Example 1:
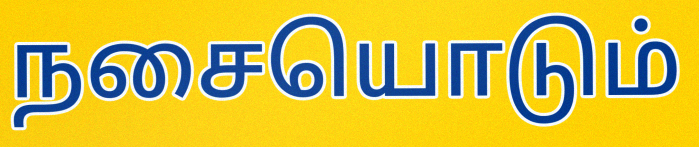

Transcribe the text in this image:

நசையொடும்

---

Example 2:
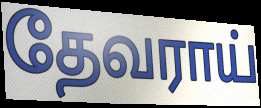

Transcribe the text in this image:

தேவராய்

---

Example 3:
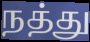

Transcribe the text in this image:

நத்து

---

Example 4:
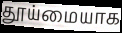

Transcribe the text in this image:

தூய்மையாக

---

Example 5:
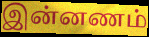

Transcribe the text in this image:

இன்னணம்